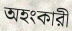
অহংকারী